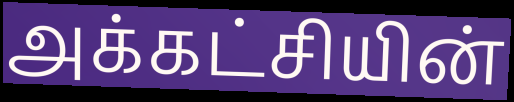
அக்கட்சியின்